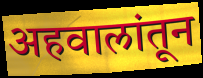
अहवालांतून